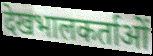
देखभालकर्ताओं